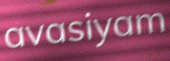
avasiyam